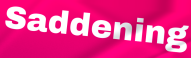
Saddening